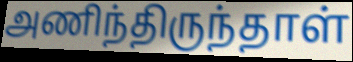
அணிந்திருந்தாள்